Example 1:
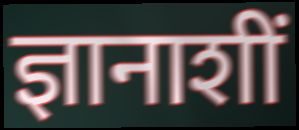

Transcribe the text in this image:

ज्ञानाशीं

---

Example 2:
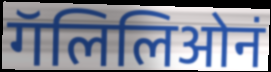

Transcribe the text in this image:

गॅलिलिओनं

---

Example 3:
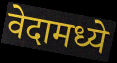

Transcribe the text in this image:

वेदामध्ये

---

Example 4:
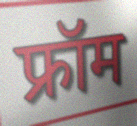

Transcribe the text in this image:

फ्रॉम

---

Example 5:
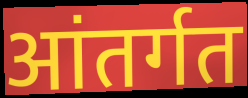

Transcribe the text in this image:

आंतर्गत